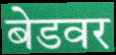
बेडवर